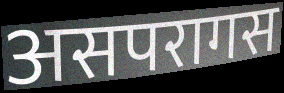
असपरागस